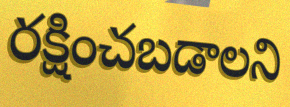
రక్షించబడాలని